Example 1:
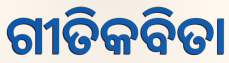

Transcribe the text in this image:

ଗୀତିକବିତା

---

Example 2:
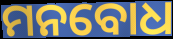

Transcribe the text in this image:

ମନବୋଧ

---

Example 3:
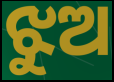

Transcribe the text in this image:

ଝୁଅ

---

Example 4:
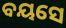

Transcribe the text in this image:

ବୟସେ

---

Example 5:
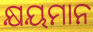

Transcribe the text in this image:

କ୍ଷୟମାନ